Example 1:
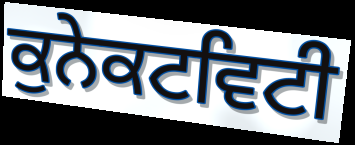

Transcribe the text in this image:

ਕੁਨੇਕਟਵਿਟੀ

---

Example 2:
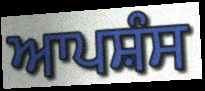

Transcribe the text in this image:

ਆਪਸ਼ੰਸ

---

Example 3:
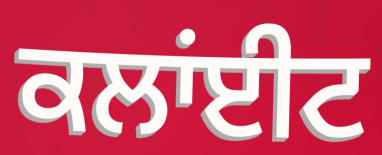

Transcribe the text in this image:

ਕਲਾਂਈਟ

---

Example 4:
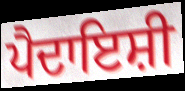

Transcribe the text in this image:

ਪੈਦਾਇਸ਼ੀ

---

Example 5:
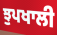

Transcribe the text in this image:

ਝੁਪਖਾਲੀ